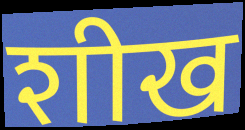
शीख